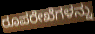
ರೂಪರೇಖೆಗಳನ್ನು